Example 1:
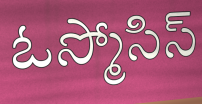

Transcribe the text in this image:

ఓస్మోసిస్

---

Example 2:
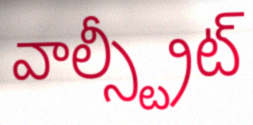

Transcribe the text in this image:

వాల్స్ట్రీట్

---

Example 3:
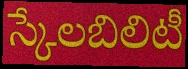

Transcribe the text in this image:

స్కేలబిలిటీ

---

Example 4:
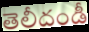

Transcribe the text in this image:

తెలీదండీ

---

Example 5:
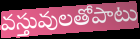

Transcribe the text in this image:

వస్తువులతోపాటు